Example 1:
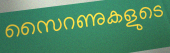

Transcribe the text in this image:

സൈറണുകളുടെ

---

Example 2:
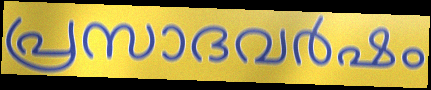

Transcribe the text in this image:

പ്രസാദവർഷം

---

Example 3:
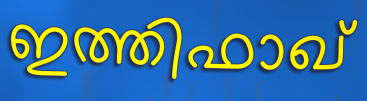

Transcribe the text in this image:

ഇത്തിഫാഖ്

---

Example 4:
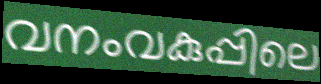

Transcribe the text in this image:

വനംവകുപ്പിലെ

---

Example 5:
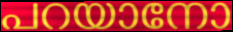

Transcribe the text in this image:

പറയാനോ